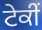
ਟੇਕੀਂ